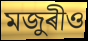
মজুৰীও